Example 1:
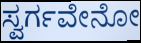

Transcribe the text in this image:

ಸ್ವರ್ಗವೇನೋ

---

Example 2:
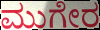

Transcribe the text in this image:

ಮುಗೇರ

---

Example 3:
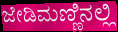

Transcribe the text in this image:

ಜೇಡಿಮಣ್ಣಿನಲ್ಲಿ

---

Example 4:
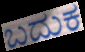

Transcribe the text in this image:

ಬದುಕ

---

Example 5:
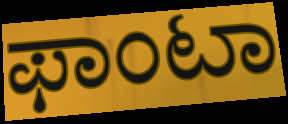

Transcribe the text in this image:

ಫಾಂಟಾ